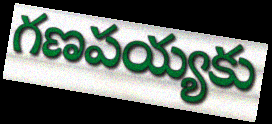
గణపయ్యకు